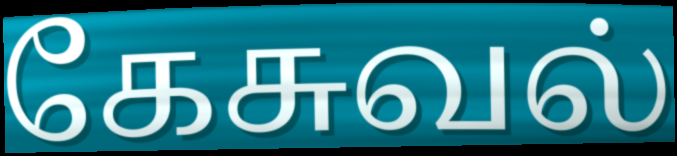
கேசுவல்